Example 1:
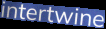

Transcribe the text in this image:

intertwine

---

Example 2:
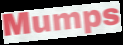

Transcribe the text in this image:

Mumps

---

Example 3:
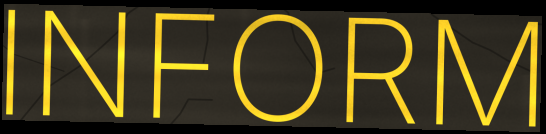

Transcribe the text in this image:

INFORM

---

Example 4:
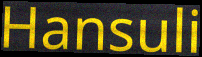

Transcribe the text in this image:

Hansuli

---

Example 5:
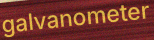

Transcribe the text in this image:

galvanometer